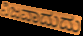
ನಿಜವಾದುದು